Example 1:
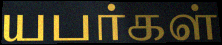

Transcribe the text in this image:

யபர்கள்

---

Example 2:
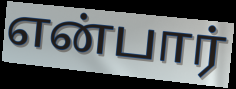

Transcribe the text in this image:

என்பார்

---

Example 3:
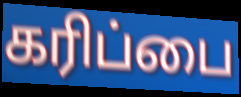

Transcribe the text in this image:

கரிப்பை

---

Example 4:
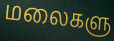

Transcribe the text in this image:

மலைகளு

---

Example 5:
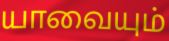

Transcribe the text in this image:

யாவையும்